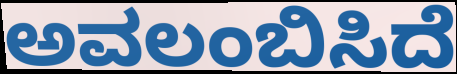
ಅವಲಂಬಿಸಿದೆ